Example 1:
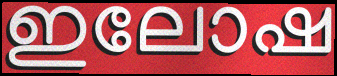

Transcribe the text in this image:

ഇലോഷ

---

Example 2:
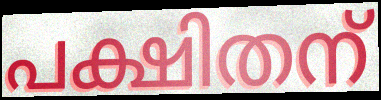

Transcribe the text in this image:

പക്ഷിതന്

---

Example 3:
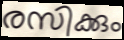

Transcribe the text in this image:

രസിക്കും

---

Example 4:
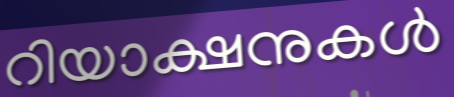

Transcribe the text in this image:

റിയാക്ഷനുകൾ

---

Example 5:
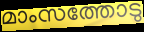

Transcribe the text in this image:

മാംസത്തോടു